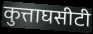
कुत्ताघसीटी